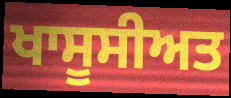
ਖਾਸੂਸੀਅਤ